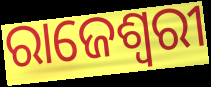
ରାଜେଶ୍ଵରୀ